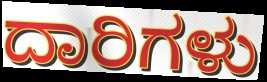
ದಾರಿಗಳು